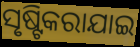
ସୃଷ୍ଟିକରାଯାଇ